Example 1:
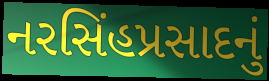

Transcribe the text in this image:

નરસિંહપ્રસાદનું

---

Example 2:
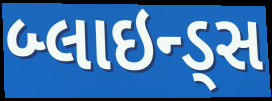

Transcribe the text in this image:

બ્લાઇન્ડ્સ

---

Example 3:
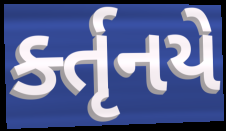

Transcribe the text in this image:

ર્ક્તૃનયે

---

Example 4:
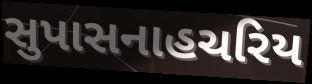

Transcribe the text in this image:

સુપાસનાહચરિય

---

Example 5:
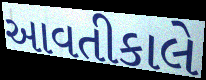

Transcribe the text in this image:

આવતીકાલે